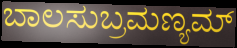
ಬಾಲಸುಬ್ರಮಣ್ಯಮ್